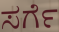
ಸರ್ಗೆ